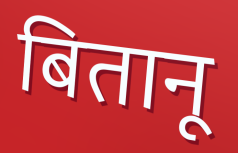
बितानू